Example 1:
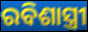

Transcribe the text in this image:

ରବିଶାସ୍ତ୍ରୀ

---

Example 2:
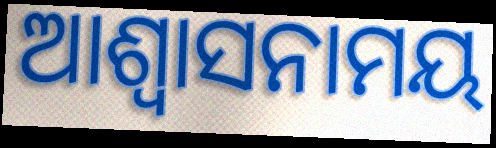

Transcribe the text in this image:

ଆଶ୍ୱାସନାମୟ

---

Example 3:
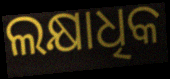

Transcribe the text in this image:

ଲକ୍ଷାଧିକ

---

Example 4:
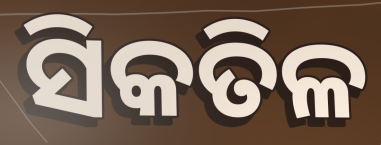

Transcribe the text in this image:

ସିକତିଳ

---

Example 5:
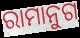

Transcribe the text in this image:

ରାମାନୁଗ